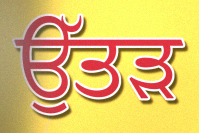
ਉੱਤੜ